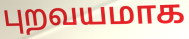
புறவயமாக